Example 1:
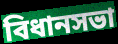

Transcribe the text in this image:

বিধানসভা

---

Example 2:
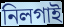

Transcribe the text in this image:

নিলগাই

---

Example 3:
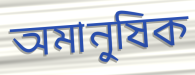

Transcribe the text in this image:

অমানুষিক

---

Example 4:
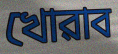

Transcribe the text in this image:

খোৱাব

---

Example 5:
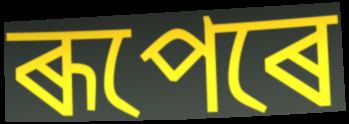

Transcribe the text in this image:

ৰূপেৰে